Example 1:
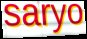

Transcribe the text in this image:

saryo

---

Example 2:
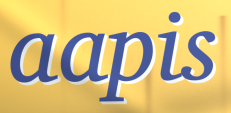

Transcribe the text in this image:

aapis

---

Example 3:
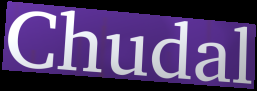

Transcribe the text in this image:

Chudal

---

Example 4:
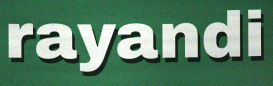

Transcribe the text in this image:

rayandi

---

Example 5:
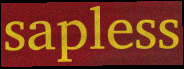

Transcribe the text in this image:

sapless